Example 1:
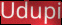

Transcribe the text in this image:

Udupi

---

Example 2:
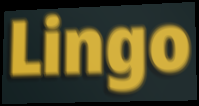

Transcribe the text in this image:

Lingo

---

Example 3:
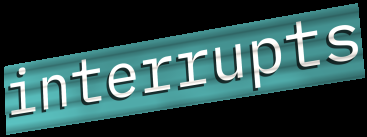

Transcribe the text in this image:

interrupts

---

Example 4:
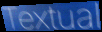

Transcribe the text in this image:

Textual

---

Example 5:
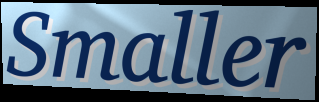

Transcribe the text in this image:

Smaller